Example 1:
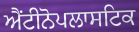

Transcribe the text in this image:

ਐਂਟੀਨੋਪਲਾਸਟਿਕ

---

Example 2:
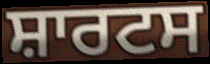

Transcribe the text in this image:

ਸ਼ਾਰਟਸ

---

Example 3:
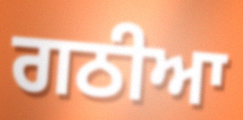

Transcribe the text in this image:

ਗਠੀਆ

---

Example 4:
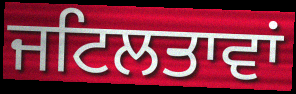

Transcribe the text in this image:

ਜਟਿਲਤਾਵਾਂ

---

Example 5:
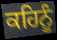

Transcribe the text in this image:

ਕਹਿਨੂੰ